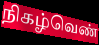
நிகழ்வெண்